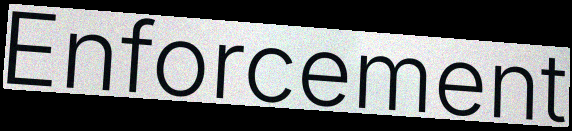
Enforcement